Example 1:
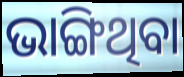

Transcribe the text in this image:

ଭାଙ୍ଗିଥିବା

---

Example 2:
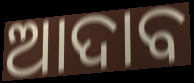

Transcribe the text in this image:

ଆଦାବ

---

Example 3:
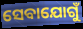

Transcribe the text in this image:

ସେବାଯୋଗୁଁ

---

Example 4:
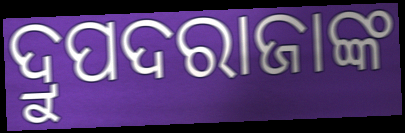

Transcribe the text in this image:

ଦ୍ରୁପଦରାଜାଙ୍କ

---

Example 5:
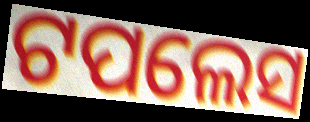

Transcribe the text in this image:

ଟପଲେସ